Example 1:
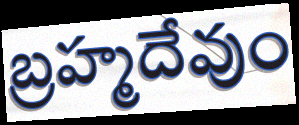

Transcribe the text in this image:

బ్రహ్మదేవుం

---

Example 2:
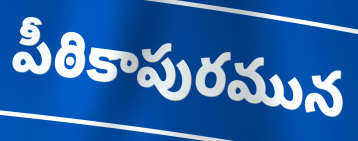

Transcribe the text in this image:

పీఠికాపురమున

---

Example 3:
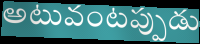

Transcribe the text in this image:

అటువంటప్పుడు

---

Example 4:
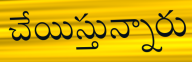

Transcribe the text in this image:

చేయిస్తున్నారు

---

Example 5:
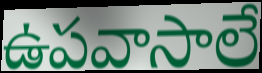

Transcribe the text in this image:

ఉపవాసాలే